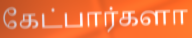
கேட்பார்களா